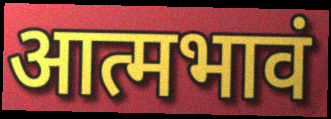
आत्मभावं